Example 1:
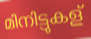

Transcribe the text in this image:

മിനിട്ടുകള്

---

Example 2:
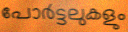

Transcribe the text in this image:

പോർട്ടലുകളും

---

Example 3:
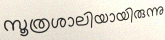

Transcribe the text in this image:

സൂത്രശാലിയായിരുന്നു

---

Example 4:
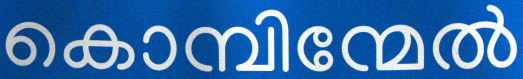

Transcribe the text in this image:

കൊമ്പിന്മേൽ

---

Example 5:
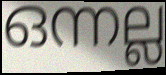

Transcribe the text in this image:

ഒന്നല്ല